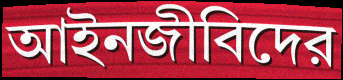
আইনজীবিদের